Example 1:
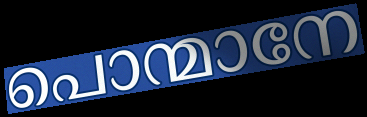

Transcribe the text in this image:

പൊന്മാനേ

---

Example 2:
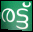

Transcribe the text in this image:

രട്ട്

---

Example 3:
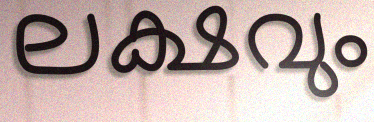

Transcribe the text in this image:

ലക്ഷവും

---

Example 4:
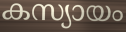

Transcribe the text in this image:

കസ്യായം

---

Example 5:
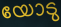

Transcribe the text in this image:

യോടു